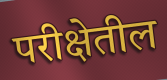
परीक्षेतील